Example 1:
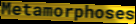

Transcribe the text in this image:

Metamorphoses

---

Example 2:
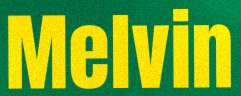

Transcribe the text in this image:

Melvin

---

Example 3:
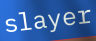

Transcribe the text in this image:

slayer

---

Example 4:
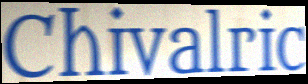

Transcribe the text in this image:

Chivalric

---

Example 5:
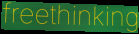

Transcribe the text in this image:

freethinking